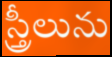
స్త్రీలును